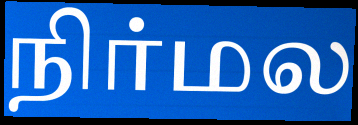
நிர்மல